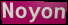
Noyon